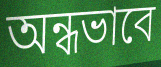
অন্ধভাবে